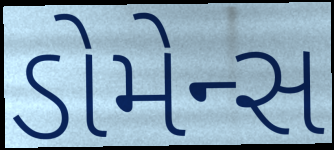
ડોમેન્સ